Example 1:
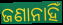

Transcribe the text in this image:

ଜଣାନାହିଁ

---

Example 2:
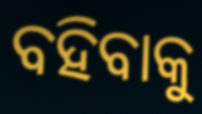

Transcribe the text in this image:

ବହିବାକୁ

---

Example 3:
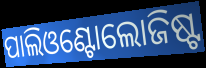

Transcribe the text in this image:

ପାଲିଓଣ୍ଟୋଲୋଜିଷ୍ଟ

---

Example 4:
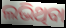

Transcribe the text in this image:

ଲଭିଥିବା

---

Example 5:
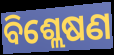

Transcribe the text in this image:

ବିଶ୍ଲେଷଣ